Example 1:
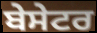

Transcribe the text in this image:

ਬੇਸੇਟਰ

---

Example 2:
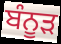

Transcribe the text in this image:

ਬੰਨੂੜ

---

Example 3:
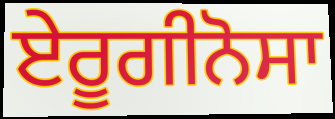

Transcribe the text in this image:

ਏਰੂਗੀਨੋਸਾ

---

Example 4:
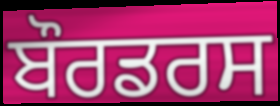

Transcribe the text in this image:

ਬੌਰਡਰਸ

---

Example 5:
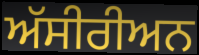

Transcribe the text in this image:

ਅੱਸੀਰੀਅਨ